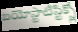
బయోస్టాటిస్టిక్స్లో